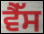
ਵੈੱਸ